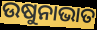
ଉଷୁନାଭାତ